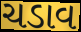
ચડાવ